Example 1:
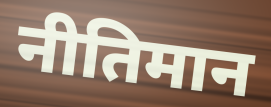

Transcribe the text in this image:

नीतिमान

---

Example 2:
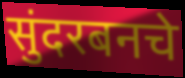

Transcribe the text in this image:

सुंदरबनचे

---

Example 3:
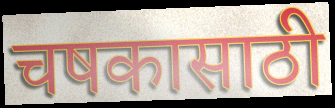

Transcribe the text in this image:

चषकासाठी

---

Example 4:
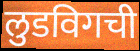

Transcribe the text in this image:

लुडविगची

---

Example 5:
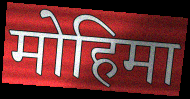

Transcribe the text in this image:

मोहिमा